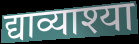
द्याव्याश्या